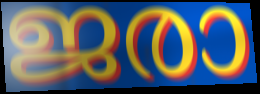
ജരാ